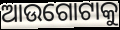
ଆଉଗୋଟାକୁ